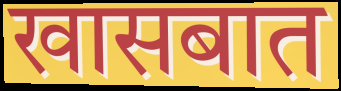
खासबात